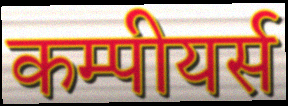
कम्पीयर्स